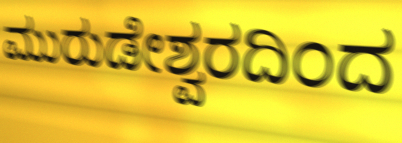
ಮುರುಡೇಶ್ವರದಿಂದ